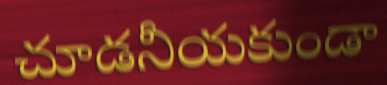
చూడనీయకుండా